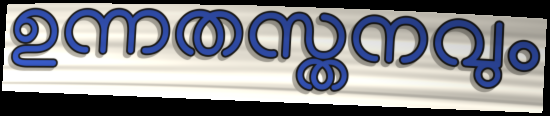
ഉന്നതസ്തനവും